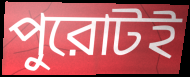
পুরোটই